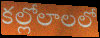
కల్లోలాలలో